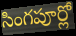
సింగపూర్లో